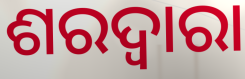
ଶରଦ୍ୱାରା